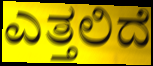
ಎತ್ತಲಿದೆ